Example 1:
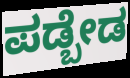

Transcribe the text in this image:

ಪಡ್ಬೇಡ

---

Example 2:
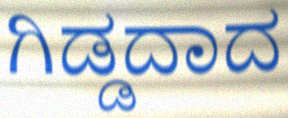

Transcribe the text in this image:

ಗಿಡ್ಡದಾದ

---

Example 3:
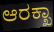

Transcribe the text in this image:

ಆರಕ್ಖಾ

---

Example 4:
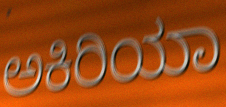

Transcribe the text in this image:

ಅಕಿರಿಯಾ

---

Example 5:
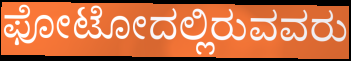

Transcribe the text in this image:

ಫೋಟೋದಲ್ಲಿರುವವರು